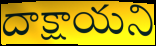
దాక్షాయని